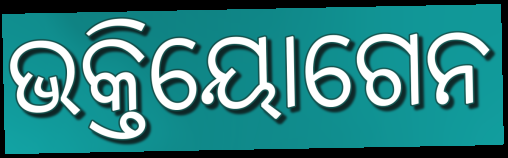
ଭକ୍ତିୟୋଗେନ